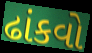
ઢાંકવો